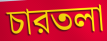
চারতলা